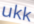
ukk